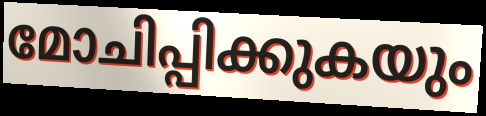
മോചിപ്പിക്കുകയും